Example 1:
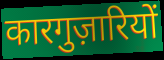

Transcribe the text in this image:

कारगुज़ारियों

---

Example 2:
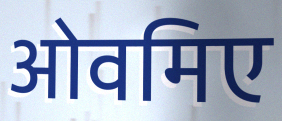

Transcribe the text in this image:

ओवमिए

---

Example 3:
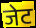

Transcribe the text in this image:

जेट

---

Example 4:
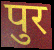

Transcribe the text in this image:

पुर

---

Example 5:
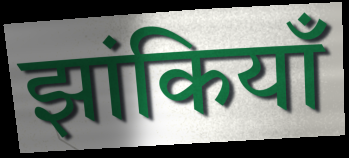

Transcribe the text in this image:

झांकियाँ